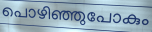
പൊഴിഞ്ഞുപോകും